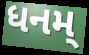
ધનમ્